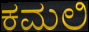
ಕಮಲಿ